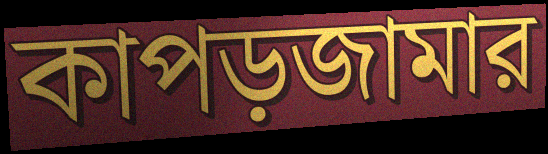
কাপড়জামার